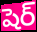
షెర్